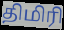
திமிரி